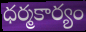
ధర్మకార్యం